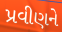
પ્રવીણને